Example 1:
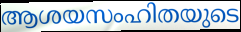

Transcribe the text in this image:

ആശയസംഹിതയുടെ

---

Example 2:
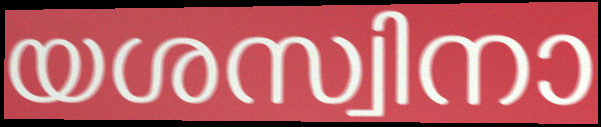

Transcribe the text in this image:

യശസ്വിനാ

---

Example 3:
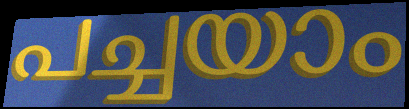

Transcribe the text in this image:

പച്ചയാം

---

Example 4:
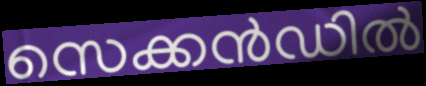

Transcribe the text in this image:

സെക്കൻഡിൽ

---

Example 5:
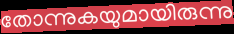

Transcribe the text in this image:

തോന്നുകയുമായിരുന്നു